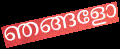
ഞങ്ങളോ